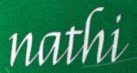
nathi